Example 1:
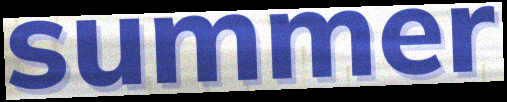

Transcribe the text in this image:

summer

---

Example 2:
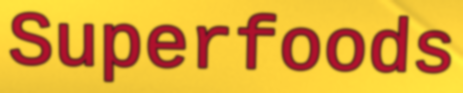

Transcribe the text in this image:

Superfoods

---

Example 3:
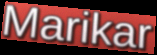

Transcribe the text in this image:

Marikar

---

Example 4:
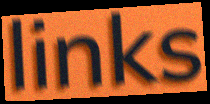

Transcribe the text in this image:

links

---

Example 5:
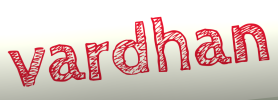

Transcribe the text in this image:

vardhan